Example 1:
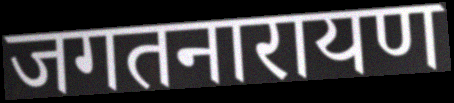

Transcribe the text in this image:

जगतनारायण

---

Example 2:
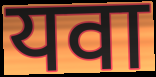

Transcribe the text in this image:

यवा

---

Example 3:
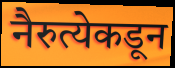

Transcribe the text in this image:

नैरुत्येकडून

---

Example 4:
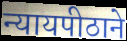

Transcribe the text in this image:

न्यायपीठाने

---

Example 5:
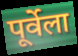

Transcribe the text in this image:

पूर्वेला